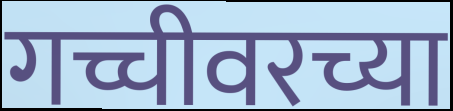
गच्चीवरच्या